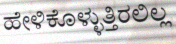
ಹೇಳಿಕೊಳ್ಳುತ್ತಿರಲಿಲ್ಲ